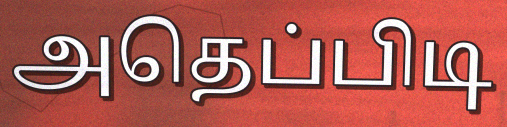
அதெப்பிடி